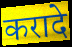
करादे